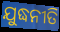
ଯୁଦ୍ଧନୀତି